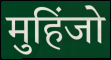
मुहिंजो